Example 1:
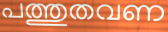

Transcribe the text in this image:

പത്തുതവണ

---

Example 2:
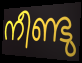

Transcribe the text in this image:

നീണ്ടു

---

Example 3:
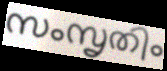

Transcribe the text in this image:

സംസൃതിം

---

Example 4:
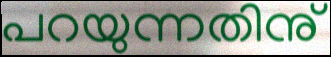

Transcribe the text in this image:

പറയുന്നതിനു്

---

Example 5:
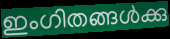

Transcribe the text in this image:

ഇംഗിതങ്ങൾക്കു